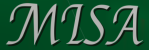
MISA